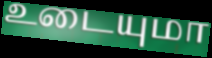
உடையுமா